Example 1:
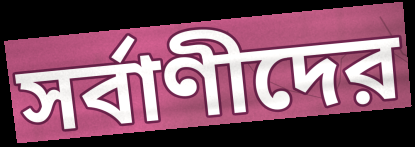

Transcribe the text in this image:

সর্বাণীদের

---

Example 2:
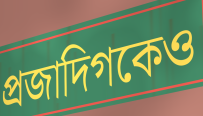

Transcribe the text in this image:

প্রজাদিগকেও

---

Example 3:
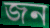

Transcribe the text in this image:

জন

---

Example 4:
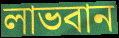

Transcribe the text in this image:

লাভবান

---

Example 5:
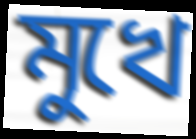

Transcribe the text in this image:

মুখে